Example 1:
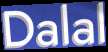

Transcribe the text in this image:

Dalal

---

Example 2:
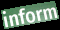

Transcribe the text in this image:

inform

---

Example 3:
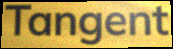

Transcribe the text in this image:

Tangent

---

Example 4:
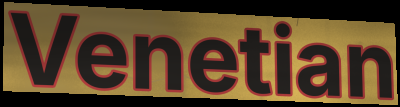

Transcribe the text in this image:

Venetian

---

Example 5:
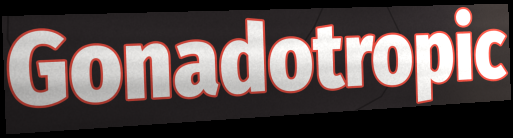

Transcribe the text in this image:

Gonadotropic